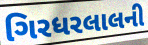
ગિરધરલાલની